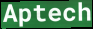
Aptech